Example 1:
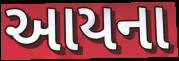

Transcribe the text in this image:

આયના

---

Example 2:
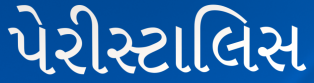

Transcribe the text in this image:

પેરીસ્ટાલિસ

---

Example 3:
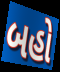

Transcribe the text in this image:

બહો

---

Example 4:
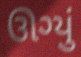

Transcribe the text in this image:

ઊગ્યું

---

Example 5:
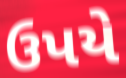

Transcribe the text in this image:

ઉપયે